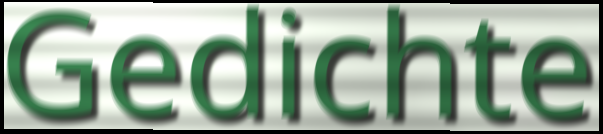
Gedichte